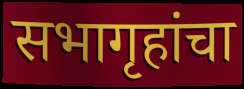
सभागृहांचा